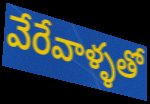
వేరేవాళ్ళతో